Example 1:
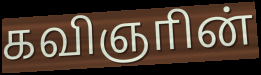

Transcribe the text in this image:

கவிஞரின்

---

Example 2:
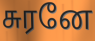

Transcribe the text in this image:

சுரனே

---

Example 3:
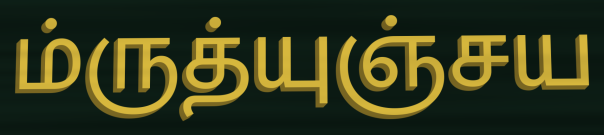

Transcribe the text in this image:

ம்ருத்யுஞ்சய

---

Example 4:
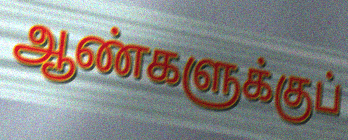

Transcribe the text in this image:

ஆண்களுக்குப்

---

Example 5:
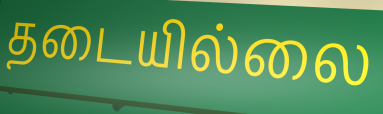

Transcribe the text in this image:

தடையில்லை